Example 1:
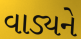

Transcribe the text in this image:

વાડ્યને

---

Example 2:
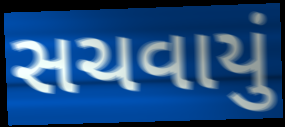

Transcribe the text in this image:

સચવાયું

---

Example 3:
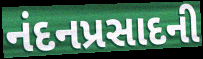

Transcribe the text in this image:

નંદનપ્રસાદની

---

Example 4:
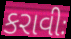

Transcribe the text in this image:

કરાવીઃ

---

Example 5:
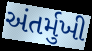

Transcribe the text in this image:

અંતર્મુખી